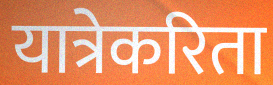
यात्रेकरिता